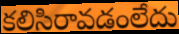
కలిసిరావడంలేదు